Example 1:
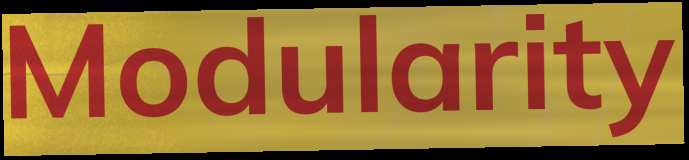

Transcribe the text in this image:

Modularity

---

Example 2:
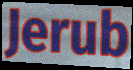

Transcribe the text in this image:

Jerub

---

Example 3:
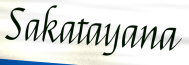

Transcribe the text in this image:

Sakatayana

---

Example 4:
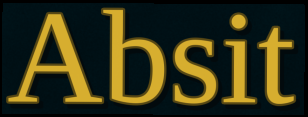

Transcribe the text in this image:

Absit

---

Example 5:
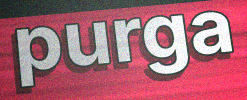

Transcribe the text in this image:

purga